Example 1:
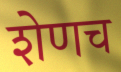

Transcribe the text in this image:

शेणच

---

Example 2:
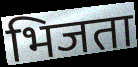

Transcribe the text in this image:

भिजता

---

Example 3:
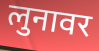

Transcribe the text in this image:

लुनावर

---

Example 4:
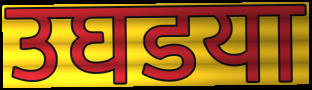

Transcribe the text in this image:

उघडया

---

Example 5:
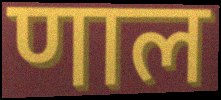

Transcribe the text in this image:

णाल